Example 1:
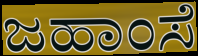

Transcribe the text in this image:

ಜಹಾಂಸೆ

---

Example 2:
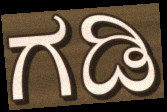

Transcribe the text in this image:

ಗಡಿ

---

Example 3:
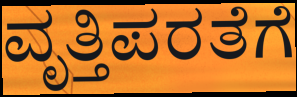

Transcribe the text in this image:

ವೃತ್ತಿಪರತೆಗೆ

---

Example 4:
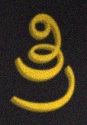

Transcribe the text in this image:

ತ್ರಿ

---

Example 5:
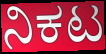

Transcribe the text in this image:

ನಿಕಟ